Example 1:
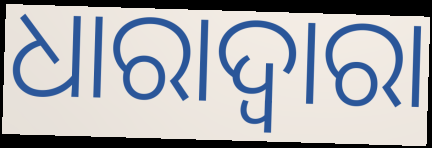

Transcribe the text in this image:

ଧାରାଦ୍ୱାରା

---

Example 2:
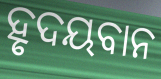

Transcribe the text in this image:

ହୃଦୟବାନ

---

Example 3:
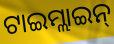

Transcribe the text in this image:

ଟାଇମ୍ଲାଇନ୍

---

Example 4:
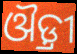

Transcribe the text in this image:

ଔଡ଼୍ରୀ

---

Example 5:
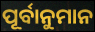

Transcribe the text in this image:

ପୂର୍ବାନୁମାନ